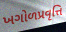
ખગોળપ્રવૃત્તિ